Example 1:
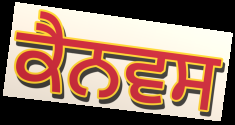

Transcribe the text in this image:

ਕੈਨਵਸ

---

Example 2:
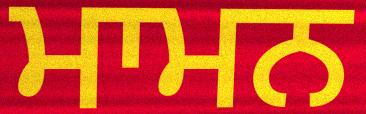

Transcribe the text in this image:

ਮਾਮਨ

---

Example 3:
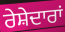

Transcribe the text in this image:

ਰੇਸ਼ੇਦਾਰਾਂ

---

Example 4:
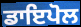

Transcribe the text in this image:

ਡਾਇਪੋਲ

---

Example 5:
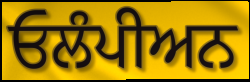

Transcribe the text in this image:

ਓਲੰਪੀਅਨ